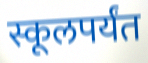
स्कूलपर्यंत